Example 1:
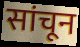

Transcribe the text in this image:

सांचून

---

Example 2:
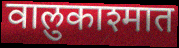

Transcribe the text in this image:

वालुकाश्मात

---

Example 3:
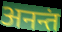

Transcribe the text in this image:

अनन्तं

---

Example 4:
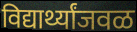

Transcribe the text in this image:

विद्यार्थ्यांजवळ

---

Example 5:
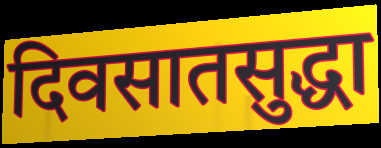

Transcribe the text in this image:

दिवसातसुद्धा